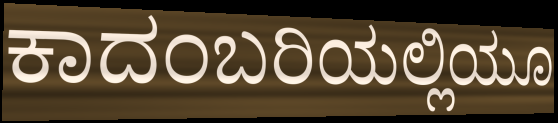
ಕಾದಂಬರಿಯಲ್ಲಿಯೂ